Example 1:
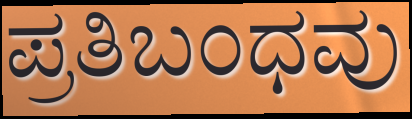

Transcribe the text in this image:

ಪ್ರತಿಬಂಧವು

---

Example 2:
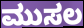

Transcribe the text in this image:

ಮುಸಲ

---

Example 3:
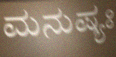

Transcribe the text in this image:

ಮನುಷ್ಯಃ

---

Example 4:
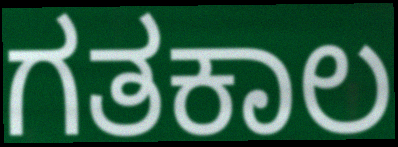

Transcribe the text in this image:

ಗತಕಾಲ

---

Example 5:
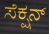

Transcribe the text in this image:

ಸೆಕ್ಷನ್